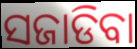
ସଜାଡିବା